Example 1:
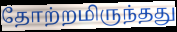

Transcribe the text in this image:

தோற்றமிருந்தது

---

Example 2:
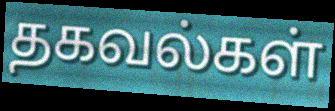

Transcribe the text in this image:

தகவல்கள்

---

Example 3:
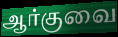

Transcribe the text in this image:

ஆர்குவை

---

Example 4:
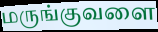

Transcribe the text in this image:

மருங்குவளை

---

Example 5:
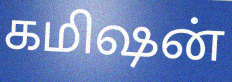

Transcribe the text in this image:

கமிஷன்